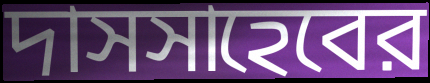
দাসসাহেবের